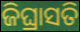
ଜିଘ୍ରାସତି